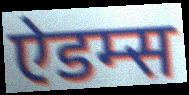
ऐडम्स